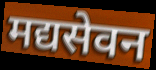
मद्यसेवन